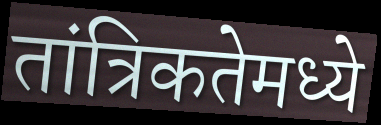
तांत्रिकतेमध्ये